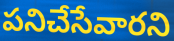
పనిచేసేవారని